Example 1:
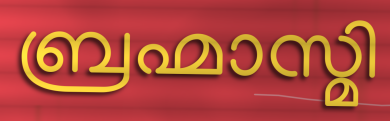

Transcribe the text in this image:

ബ്രഹ്മാസ്മി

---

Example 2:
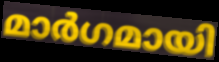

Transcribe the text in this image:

മാർഗമായി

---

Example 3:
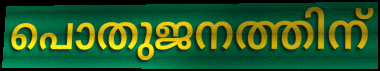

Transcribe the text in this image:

പൊതുജനത്തിന്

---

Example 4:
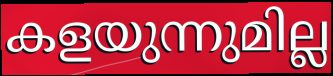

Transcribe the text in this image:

കളയുന്നുമില്ല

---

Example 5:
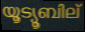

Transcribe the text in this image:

യൂട്യൂബില്